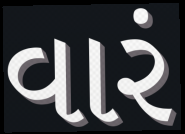
વારં